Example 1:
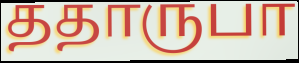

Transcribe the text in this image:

ததாருபா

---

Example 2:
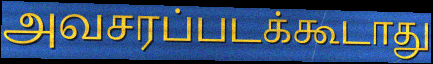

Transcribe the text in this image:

அவசரப்படக்கூடாது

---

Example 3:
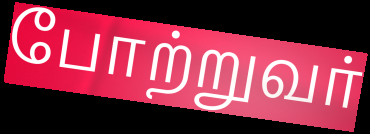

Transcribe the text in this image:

போற்றுவர்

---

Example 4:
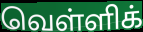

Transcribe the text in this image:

வெள்ளிக்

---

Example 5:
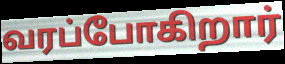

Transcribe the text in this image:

வரப்போகிறார்